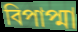
বিপাপ্মা